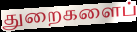
துறைகளைப்